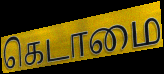
கெடாமை